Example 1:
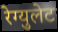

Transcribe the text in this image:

रेग्‍युलेट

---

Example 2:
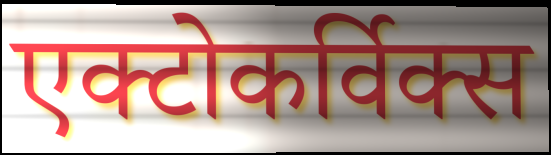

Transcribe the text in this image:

एक्टोकर्विक्स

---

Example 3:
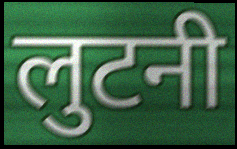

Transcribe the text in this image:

लुटनी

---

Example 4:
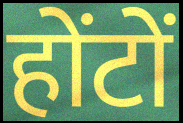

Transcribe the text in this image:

होंटों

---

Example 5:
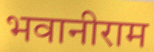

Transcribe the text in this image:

भवानीराम